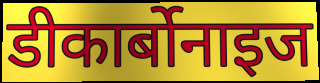
डीकार्बोनाइज